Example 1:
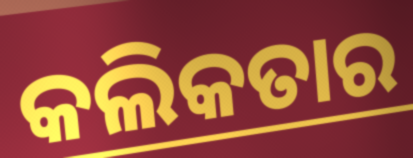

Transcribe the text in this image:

କଲିକତାର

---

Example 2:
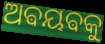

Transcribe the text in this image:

ଅଵୟଵକୁ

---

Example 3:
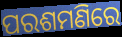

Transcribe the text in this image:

ପରଶମଣିରେ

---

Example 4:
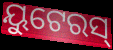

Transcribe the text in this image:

ୟୁଟେରସ୍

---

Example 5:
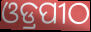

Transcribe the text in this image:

ଓଡ୍ରପୀଠ